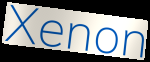
Xenon